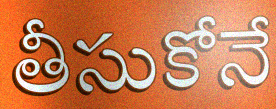
తీసుకోనే